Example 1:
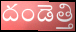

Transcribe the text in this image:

దండెత్తి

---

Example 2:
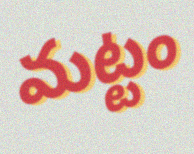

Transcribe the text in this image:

మట్టం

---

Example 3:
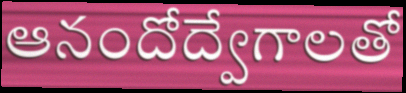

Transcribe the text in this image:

ఆనందోద్వేగాలతో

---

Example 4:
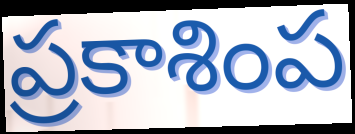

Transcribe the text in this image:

ప్రకాశింప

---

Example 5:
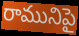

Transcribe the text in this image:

రామునిపై